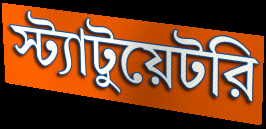
স্ট্যাটুয়েটরি